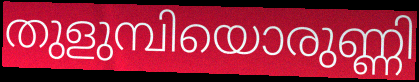
തുളുമ്പിയൊരുണ്ണി